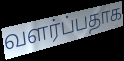
வளர்ப்பதாக